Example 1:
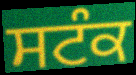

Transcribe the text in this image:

ਸਟੰਕ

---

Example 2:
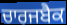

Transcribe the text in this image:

ਚਾਰਜਬੈਕ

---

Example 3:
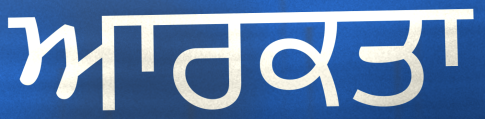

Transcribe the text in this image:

ਆਰਕਤਾ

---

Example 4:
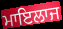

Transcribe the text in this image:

ਮਾਇਲਾਜ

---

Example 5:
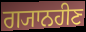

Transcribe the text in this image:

ਗ੍ਯਾਨਹੀਣ